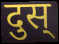
दुस्